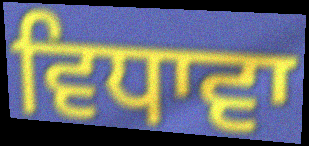
ਵਿਧਾਵਾ